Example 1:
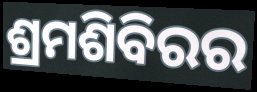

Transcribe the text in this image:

ଶ୍ରମଶିବିରର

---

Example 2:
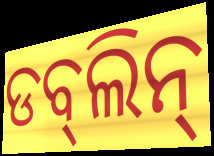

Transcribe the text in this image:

ଡବ୍‌ଲିନ୍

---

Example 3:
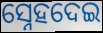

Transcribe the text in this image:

ସ୍ନେହଦେଇ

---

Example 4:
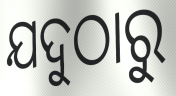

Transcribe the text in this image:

ଯଦୁଠାରୁ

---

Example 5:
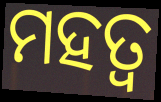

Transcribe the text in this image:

ମହତ୍ବ